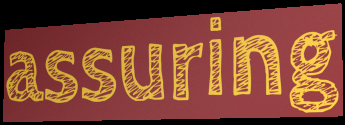
assuring